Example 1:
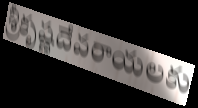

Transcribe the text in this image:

శ్రీకృష్ణదేవరాయలకు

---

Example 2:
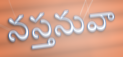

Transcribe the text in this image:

నస్తనువా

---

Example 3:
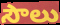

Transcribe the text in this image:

సౌలు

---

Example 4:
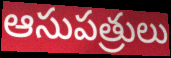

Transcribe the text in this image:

ఆసుపత్రులు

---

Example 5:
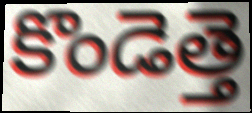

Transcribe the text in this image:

కొండెత్తె